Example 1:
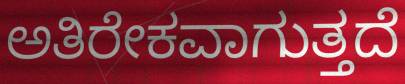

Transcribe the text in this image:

ಅತಿರೇಕವಾಗುತ್ತದೆ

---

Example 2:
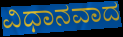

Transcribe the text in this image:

ವಿಧಾನವಾದ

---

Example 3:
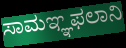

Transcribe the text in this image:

ಸಾಮಞ್ಞಫಲಾನಿ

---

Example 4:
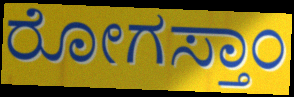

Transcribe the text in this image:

ರೋಗಸ್ತಾಂ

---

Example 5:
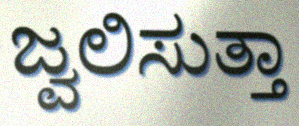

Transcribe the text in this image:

ಜ್ವಲಿಸುತ್ತಾ